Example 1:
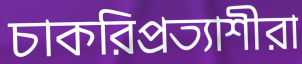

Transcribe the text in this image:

চাকরিপ্রত্যাশীরা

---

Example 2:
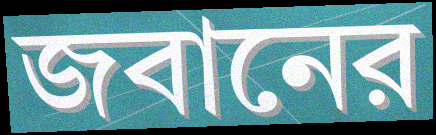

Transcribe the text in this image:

জবানের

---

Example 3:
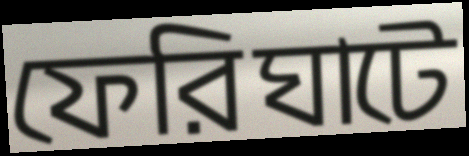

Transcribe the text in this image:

ফেরিঘাটে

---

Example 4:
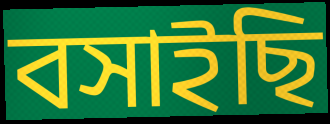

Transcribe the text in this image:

বসাইছি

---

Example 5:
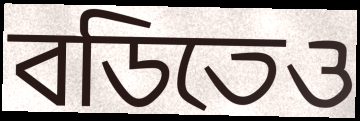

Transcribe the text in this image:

বডিতেও